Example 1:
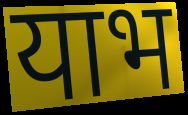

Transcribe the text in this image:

याभ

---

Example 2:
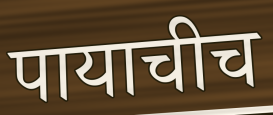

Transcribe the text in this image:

पायाचीच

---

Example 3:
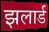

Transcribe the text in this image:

झलार्ड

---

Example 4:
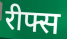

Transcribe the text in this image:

रीफ्स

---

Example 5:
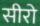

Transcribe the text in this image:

सीरो